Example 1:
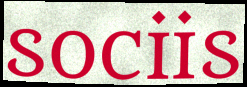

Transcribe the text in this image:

sociis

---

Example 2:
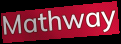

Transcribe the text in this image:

Mathway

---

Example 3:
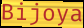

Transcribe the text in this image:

Bijoya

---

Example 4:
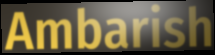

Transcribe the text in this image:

Ambarish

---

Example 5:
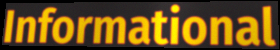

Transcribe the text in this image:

Informational